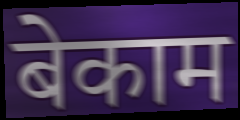
बेकाम